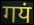
गयं